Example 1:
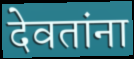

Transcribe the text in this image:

देवतांना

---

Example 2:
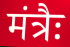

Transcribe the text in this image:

मंत्रैः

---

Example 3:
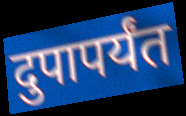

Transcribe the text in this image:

दुपापर्यंत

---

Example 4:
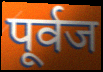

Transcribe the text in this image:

पूर्वज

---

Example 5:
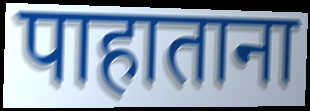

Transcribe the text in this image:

पाहाताना